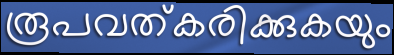
രൂപവത്കരിക്കുകയും